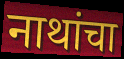
नाथांचा